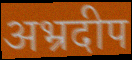
अभ्रदीप